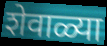
शेवाळ्या